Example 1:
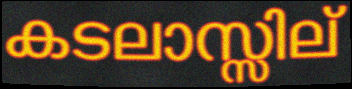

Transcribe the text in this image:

കടലാസ്സില്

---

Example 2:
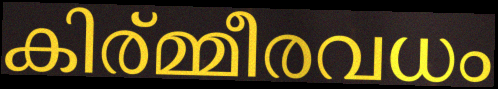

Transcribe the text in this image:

കിര്മ്മീരവധം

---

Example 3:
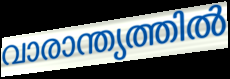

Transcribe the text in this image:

വാരാന്ത്യത്തിൽ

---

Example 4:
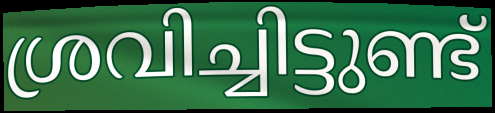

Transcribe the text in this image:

ശ്രവിച്ചിട്ടുണ്ട്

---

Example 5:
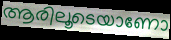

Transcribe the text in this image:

ആരിലൂടെയാണോ